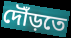
দৌঁড়তে